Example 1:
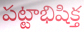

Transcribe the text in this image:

పట్టాభిషిక్త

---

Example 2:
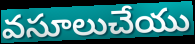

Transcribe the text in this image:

వసూలుచేయు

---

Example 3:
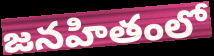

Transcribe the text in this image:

జనహితంలో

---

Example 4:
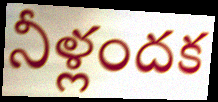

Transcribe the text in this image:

నీళ్లందక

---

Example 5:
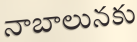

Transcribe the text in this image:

నాబాలునకు